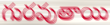
గురవుతాయి